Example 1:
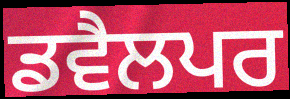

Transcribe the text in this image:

ਡਵੈਲਪਰ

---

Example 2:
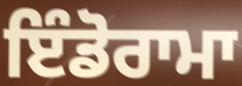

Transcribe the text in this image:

ਇੰਡੋਰਾਮਾ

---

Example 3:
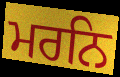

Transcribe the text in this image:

ਮਰਨਿ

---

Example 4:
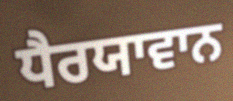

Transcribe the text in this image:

ਧੈਰਯਾਵਾਨ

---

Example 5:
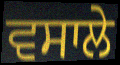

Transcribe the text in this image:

ਵਸਾਲੇ